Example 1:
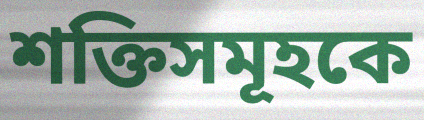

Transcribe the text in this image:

শক্তিসমূহকে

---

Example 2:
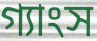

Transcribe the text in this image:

গ্যাংস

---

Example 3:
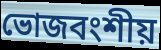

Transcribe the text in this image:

ভোজবংশীয়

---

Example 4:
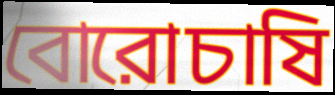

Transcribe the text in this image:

বোরোচাষি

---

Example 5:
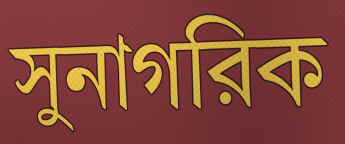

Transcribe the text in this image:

সুনাগরিক